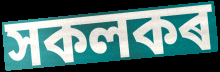
সকলকৰ